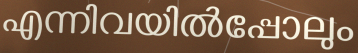
എന്നിവയിൽപ്പോലും